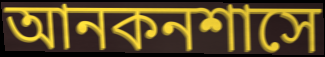
আনকনশাসে